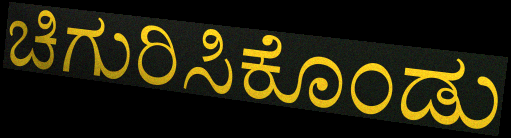
ಚಿಗುರಿಸಿಕೊಂಡು